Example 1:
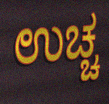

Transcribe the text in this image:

ಉಚ್ಚ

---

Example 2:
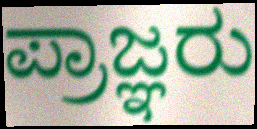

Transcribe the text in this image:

ಪ್ರಾಜ್ಞರು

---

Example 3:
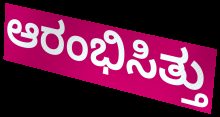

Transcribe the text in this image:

ಆರಂಭಿಸಿತ್ತು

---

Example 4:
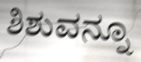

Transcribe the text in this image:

ಶಿಶುವನ್ನೂ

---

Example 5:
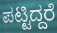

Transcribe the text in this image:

ಪಟ್ಟಿದ್ದರೆ